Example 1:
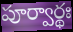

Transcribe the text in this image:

పూర్వార్థః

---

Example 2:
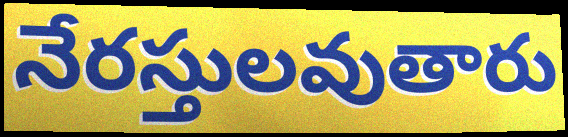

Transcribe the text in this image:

నేరస్తులవుతారు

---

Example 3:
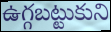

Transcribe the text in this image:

ఉగ్గబట్టుకుని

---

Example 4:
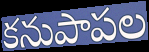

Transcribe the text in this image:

కనుపాపల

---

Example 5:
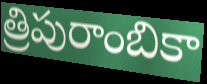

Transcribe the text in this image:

త్రిపురాంబికా